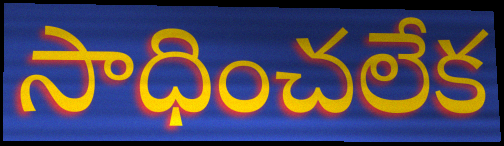
సాధించలేక